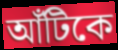
আঁটিকে